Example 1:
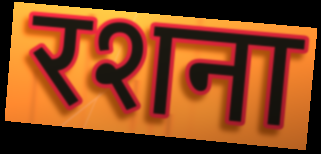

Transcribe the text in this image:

रशना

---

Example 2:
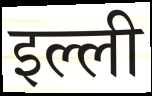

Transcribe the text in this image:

इल्ली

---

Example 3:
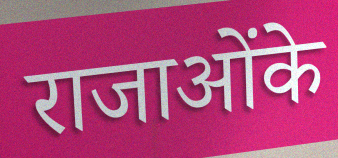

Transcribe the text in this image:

राजाओंके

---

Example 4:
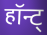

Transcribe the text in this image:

हॉन्ट्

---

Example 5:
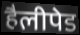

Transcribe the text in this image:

हैलीपेड